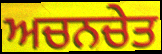
ਅਚਨਚੇਤ